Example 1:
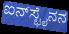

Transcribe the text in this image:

ಐನ್‌ಸ್ಟೈನನ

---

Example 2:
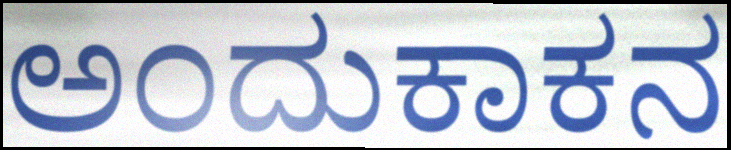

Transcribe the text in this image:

ಅಂದುಕಾಕನ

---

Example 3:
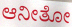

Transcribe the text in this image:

ಆನೀತೋ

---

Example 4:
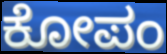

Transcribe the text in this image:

ಕೋಪಂ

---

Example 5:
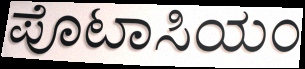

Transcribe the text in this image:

ಪೊಟಾಸಿಯಂ